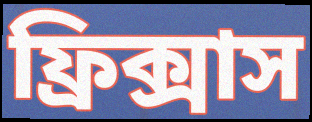
ফ্রিক্সাস